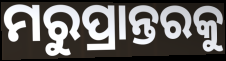
ମରୁପ୍ରାନ୍ତରକୁ